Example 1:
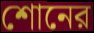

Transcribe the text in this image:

শোনের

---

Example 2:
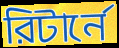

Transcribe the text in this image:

রিটার্নে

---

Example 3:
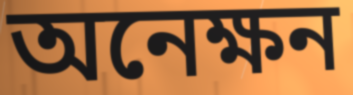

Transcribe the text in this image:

অনেক্ষন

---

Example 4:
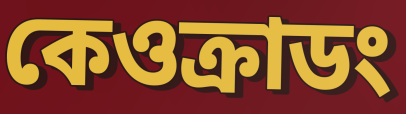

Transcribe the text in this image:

কেওক্রাডং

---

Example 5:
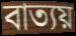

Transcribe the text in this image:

বাত্যয়